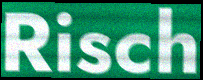
Risch